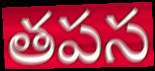
తపస